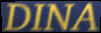
DINA